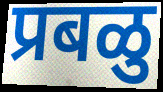
प्रबळु